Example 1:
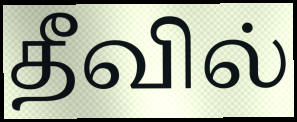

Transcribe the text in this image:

தீவில்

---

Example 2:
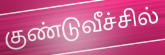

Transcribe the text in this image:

குண்டுவீச்சில்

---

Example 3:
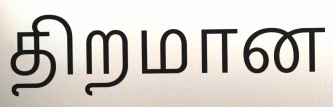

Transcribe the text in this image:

திறமான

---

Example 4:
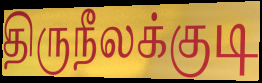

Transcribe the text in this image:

திருநீலக்குடி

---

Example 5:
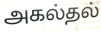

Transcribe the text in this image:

அகல்தல்